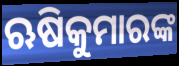
ଋଷିକୁମାରଙ୍କ